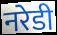
नरेडी